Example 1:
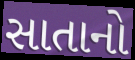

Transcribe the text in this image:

સાતાનો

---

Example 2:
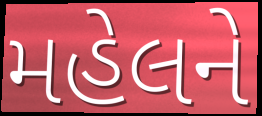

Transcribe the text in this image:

મહેલને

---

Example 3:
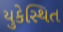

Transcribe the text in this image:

યુકેસ્થિત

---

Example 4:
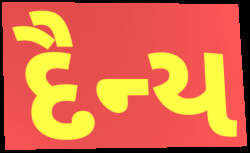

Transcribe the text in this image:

દૈન્ય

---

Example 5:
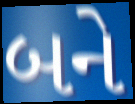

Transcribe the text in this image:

બને